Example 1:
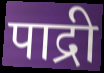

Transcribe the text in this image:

पाद्री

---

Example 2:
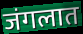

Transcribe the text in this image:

जंगलात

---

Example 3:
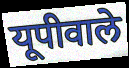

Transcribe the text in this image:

यूपीवाले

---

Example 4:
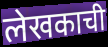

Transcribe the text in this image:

लेखकाची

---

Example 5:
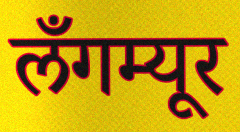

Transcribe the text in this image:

लँगम्यूर